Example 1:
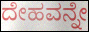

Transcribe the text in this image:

ದೇಹವನ್ನೇ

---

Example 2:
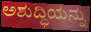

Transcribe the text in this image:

ಅಶುದ್ಧಿಯನ್ನು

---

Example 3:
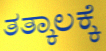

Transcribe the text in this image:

ತತ್ಕಾಲಕ್ಕೆ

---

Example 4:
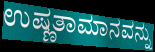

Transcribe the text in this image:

ಉಷ್ಣತಾಮಾನವನ್ನು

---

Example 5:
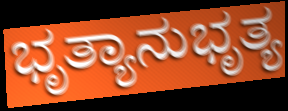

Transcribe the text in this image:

ಭೃತ್ಯಾನುಭೃತ್ಯ